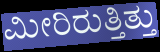
ಮೀರಿರುತ್ತಿತ್ತು